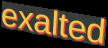
exalted